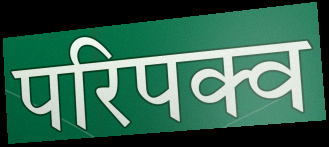
परिपक्व